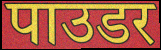
पाउडर